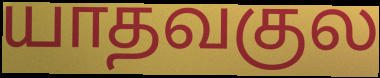
யாதவகுல